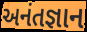
અનંતજ્ઞાન